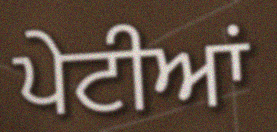
ਪੇਟੀਆਂ